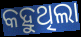
କହୁଥିଲା